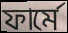
ফার্মে